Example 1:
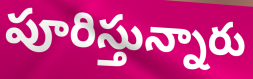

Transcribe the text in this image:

పూరిస్తున్నారు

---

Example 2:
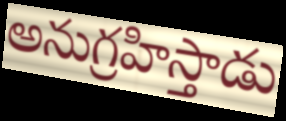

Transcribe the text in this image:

అనుగ్రహిస్తాడు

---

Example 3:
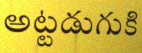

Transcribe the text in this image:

అట్టడుగుకి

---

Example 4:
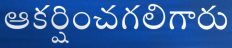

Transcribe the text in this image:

ఆకర్షించగలిగారు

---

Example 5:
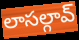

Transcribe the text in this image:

లాసల్గావ్